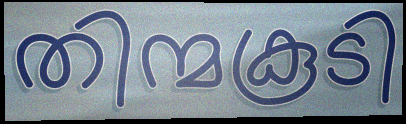
തിന്മകൂടി